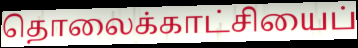
தொலைக்காட்சியைப்